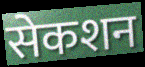
सेकशन